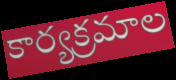
కార్యక్రమాల